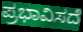
ಪ್ರಭಾವಿಸದೆ